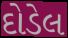
દોડેલ